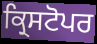
ਕ੍ਰਿਸਟੋਪਰ